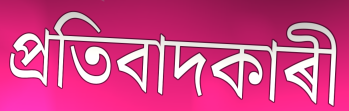
প্ৰতিবাদকাৰী